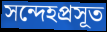
সন্দেহপ্রসূত